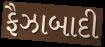
ફૈઝાબાદી